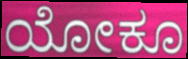
ಯೋಕೂ